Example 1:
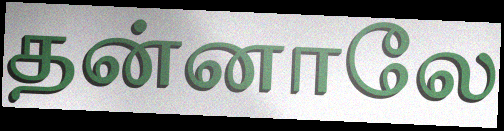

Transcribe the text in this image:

தன்னாலே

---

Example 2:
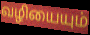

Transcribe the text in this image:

வழியையும்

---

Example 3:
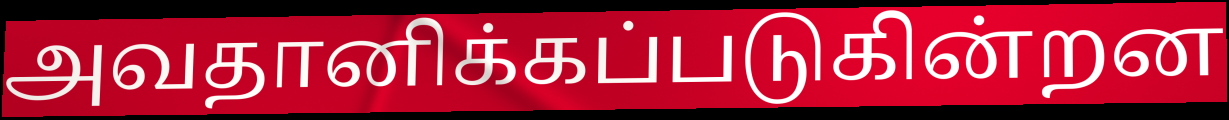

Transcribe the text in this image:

அவதானிக்கப்படுகின்றன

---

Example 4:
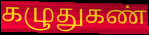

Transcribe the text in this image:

கழுதுகண்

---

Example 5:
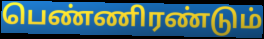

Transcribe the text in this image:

பெண்ணிரண்டும்